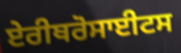
ਏਰੀਥਰੋਸਾਈਟਸ